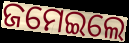
ଜମେଇଲେ